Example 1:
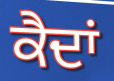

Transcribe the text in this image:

ਕੈਦਾਂ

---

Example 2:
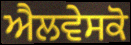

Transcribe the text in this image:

ਐਲਵੇਸਕੋ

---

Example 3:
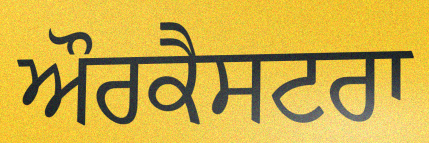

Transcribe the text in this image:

ਔਰਕੈਸਟਰਾ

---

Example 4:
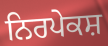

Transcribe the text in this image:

ਨਿਰਪੇਕਸ਼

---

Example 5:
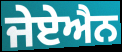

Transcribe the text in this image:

ਜੇਏਐਨ